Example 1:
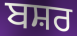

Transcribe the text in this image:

ਬਸ਼ਰ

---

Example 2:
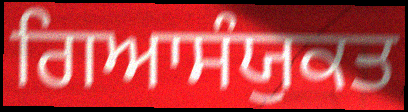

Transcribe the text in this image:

ਗਿਆਸੰਯੁਕਤ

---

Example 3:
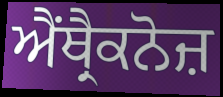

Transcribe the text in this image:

ਐਂਥ੍ਰੈਕਨੋਜ਼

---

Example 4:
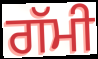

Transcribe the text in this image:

ਗੱਮੀ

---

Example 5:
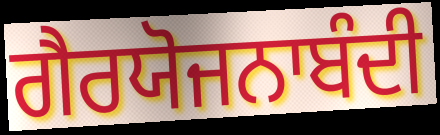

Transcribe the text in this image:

ਗੈਰਯੋਜਨਾਬੰਦੀ